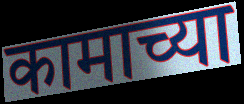
कामाच्या